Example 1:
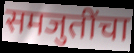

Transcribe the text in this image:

समजुतींचा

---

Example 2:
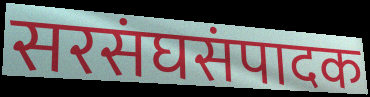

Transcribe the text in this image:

सरसंघसंपादक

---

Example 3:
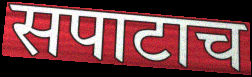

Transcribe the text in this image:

सपाटाच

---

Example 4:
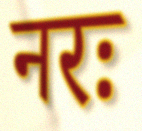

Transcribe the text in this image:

नरः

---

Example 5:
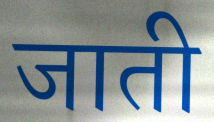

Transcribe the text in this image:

जाती